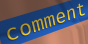
comment